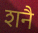
शनै